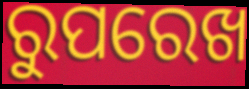
ରୁପରେଖ